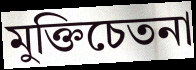
মুক্তিচেতনা